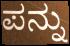
ಪನ್ನು